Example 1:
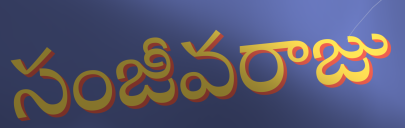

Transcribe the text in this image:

సంజీవరాజు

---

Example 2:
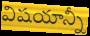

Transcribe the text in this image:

విషయాన్నీ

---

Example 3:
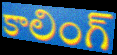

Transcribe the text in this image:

కాలింగ్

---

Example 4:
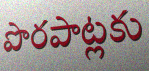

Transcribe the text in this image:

పొరపాట్లకు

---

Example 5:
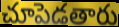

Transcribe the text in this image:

చూపెడతారు